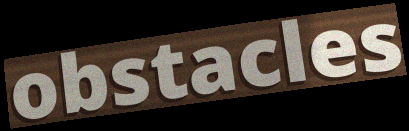
obstacles